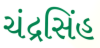
ચંદ્રસિંહ